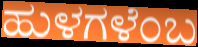
ಹುಳಗಳೆಂಬ